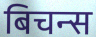
बिचन्स